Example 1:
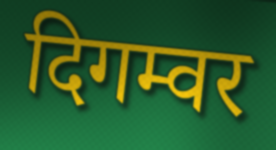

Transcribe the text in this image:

दिगम्वर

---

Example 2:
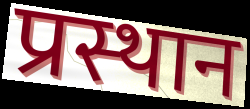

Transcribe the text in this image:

प्रस्थान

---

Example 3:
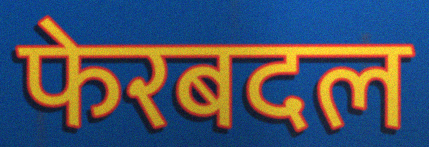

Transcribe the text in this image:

फेरबदल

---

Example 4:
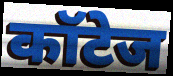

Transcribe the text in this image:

कॉटेज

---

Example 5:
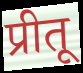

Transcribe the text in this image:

प्रीतू